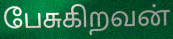
பேசுகிறவன்